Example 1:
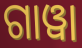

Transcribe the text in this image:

ଗାୱା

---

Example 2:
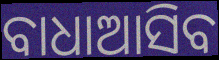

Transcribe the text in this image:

ବାଧାଆସିବ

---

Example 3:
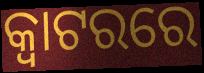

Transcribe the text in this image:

କ୍ୱାଟରରେ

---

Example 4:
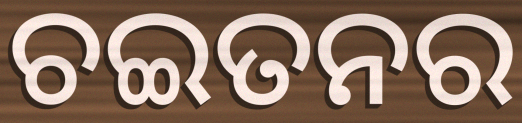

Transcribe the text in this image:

ଚଇତନର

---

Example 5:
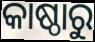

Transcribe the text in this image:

କାଷ୍ଠାରୁ